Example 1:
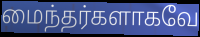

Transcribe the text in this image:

மைந்தர்களாகவே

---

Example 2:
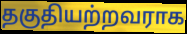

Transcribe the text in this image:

தகுதியற்றவராக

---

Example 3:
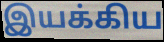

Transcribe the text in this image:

இயக்கிய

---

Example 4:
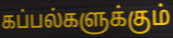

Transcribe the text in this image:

கப்பல்களுக்கும்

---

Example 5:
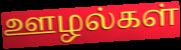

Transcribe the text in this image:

ஊழல்கள்